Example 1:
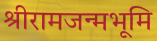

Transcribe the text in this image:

श्रीरामजन्मभूमि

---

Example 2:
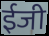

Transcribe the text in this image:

ईजी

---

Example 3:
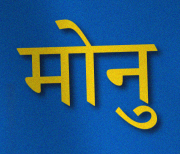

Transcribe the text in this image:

मोनु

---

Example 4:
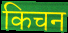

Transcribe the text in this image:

किचन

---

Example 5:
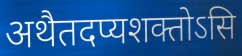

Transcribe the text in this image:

अथैतदप्यशक्तोऽसि